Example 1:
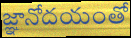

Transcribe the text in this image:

జ్ఞానోదయంతో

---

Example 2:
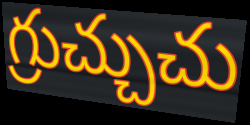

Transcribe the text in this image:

గ్రుచ్చుచు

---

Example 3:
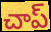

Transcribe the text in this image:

చాప్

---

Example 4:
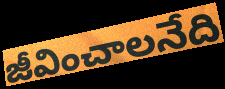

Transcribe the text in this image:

జీవించాలనేది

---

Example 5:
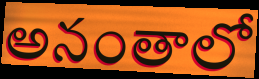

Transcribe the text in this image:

అనంతాలో